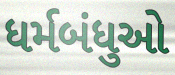
ધર્મબંધુઓ